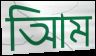
আিম